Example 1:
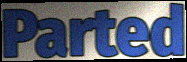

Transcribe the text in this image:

Parted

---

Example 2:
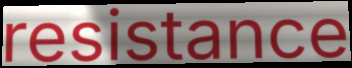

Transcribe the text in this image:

resistance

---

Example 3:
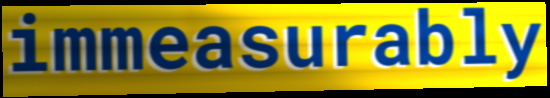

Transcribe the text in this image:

immeasurably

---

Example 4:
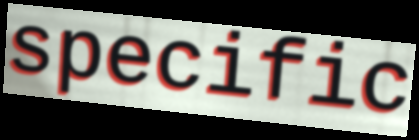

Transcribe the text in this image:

specific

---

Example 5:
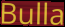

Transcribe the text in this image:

Bulla